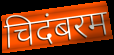
चिदंबरम